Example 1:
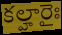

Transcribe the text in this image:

కల్హారైః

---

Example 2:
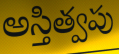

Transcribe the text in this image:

అస్తిత్వపు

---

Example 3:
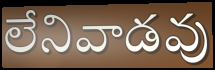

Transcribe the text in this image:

లేనివాడవు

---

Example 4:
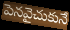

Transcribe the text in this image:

పెనవైచుకునే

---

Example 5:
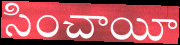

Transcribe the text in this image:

సించాయీ